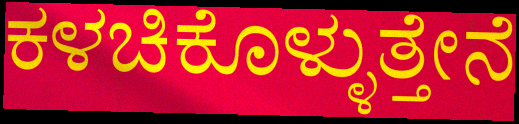
ಕಳಚಿಕೊಳ್ಳುತ್ತೇನೆ